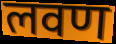
लवण